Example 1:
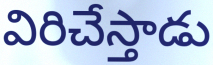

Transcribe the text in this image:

విరిచేస్తాడు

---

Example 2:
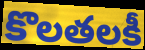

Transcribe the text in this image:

కొలతలకీ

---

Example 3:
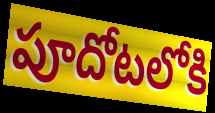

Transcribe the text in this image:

పూదోటలోకి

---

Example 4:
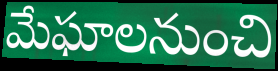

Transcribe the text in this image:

మేఘాలనుంచి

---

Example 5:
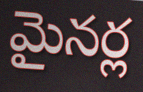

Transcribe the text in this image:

మైనర్ల